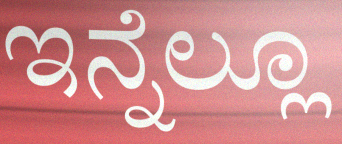
ಇನ್ನೆಲ್ಲೂ